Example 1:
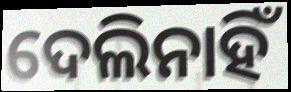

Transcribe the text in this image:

ଦେଲିନାହିଁ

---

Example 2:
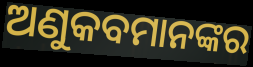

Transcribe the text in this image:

ଅଣୁକବମାନଙ୍କର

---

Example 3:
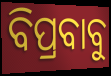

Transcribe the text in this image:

ବିପ୍ରବାବୁ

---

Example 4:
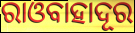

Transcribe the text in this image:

ରାଓବାହାଦୂର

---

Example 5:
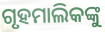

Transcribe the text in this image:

ଗୃହମାଲିକଙ୍କୁ